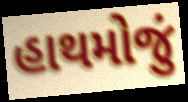
હાથમોજું